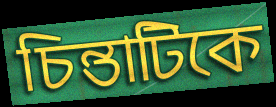
চিন্তাটিকে